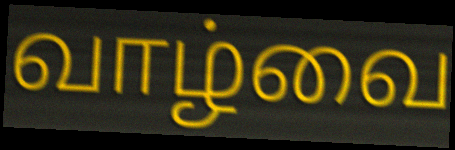
வாழ்வை